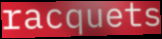
racquets